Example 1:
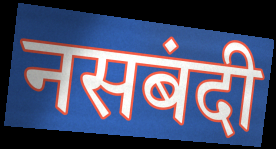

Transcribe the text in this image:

नसबंदी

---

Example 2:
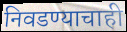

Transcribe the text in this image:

निवडण्याचाही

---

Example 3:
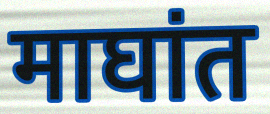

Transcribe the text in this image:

माघांत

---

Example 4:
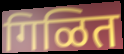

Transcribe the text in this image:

गिळित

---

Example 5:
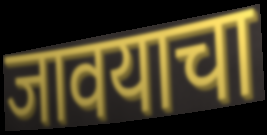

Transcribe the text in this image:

जावयाचा